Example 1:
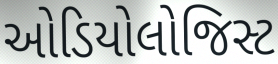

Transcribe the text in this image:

ઓડિયોલોજિસ્ટ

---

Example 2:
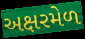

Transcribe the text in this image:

અક્ષરમેળ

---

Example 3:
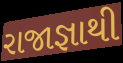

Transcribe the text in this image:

રાજાજ્ઞાથી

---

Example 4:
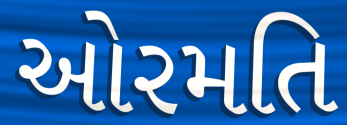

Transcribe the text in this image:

ઓરમતિ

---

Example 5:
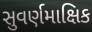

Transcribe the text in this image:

સુવર્ણમાક્ષિક